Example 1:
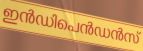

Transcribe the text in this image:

ഇൻഡിപെൻഡൻസ്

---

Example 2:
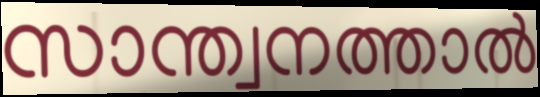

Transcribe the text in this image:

സാന്ത്വനത്താൽ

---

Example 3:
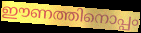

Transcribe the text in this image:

ഈണത്തിനൊപ്പം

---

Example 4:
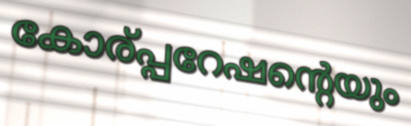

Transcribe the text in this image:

കോര്പ്പറേഷന്റെയും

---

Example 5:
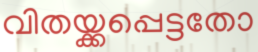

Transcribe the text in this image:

വിതയ്ക്കപ്പെട്ടതോ